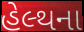
હેલ્થના